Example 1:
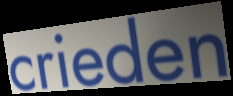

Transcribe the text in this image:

crieden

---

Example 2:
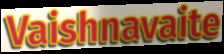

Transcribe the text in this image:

Vaishnavaite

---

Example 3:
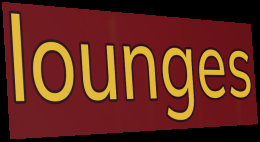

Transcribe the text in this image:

lounges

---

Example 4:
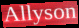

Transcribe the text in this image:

Allyson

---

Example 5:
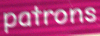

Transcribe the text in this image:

patrons